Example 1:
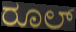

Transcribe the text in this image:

ರೂಲ್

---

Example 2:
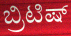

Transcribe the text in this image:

ಬ್ರಿಟಿಷ್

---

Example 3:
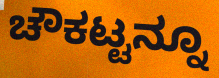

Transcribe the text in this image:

ಚೌಕಟ್ಟನ್ನೂ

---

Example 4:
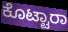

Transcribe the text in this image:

ಕೊಟ್ಟಾರಾ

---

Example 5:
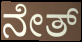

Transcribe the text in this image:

ನೇತ್